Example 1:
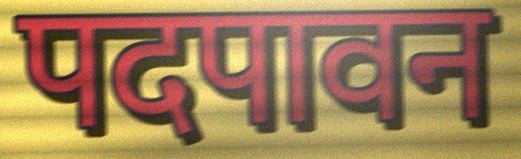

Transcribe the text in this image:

पदपावन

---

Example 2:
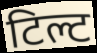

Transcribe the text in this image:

टिल्ट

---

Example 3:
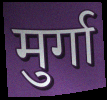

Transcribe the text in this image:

मुर्गा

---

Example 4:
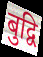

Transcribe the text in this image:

बुद्वि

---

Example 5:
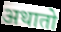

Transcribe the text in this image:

अथातो